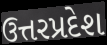
ઉત્તરપ્રદેશ